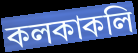
কলকাকলি